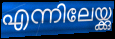
എന്നിലേയ്ക്കു